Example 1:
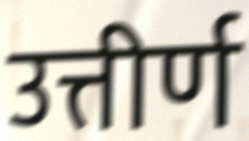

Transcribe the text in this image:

उत्तीर्ण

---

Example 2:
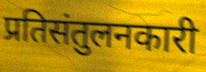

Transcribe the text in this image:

प्रतिसंतुलनकारी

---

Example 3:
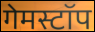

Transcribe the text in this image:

गेमस्टॉप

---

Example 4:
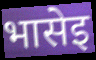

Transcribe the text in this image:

भासेइ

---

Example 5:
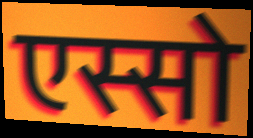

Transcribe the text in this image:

एस्सो